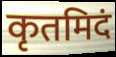
कृतमिदं